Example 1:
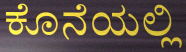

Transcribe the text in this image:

ಕೊನೆಯಲ್ಲಿ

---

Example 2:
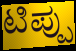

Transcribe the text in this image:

ಟಿಪ್ಪು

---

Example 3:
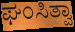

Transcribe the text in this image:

ಘಂಸಿತ್ವಾ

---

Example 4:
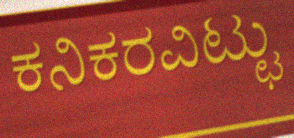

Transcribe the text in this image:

ಕನಿಕರವಿಟ್ಟು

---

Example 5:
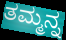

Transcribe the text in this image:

ತಮ್ಮನ್ನ